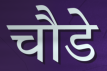
चौडे